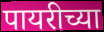
पायरीच्या